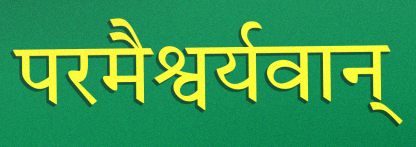
परमैश्वर्यवान्